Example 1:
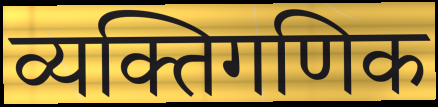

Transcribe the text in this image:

व्यक्तिगणिक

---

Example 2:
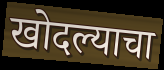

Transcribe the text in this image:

खोदल्याचा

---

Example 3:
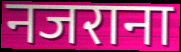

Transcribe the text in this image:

नजराना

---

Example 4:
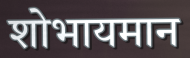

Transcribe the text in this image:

शोभायमान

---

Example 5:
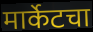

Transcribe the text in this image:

मार्केटचा